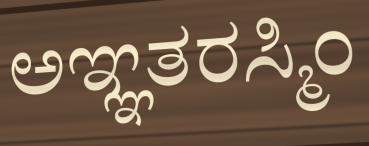
ಅಞ್ಞತರಸ್ಮಿಂ